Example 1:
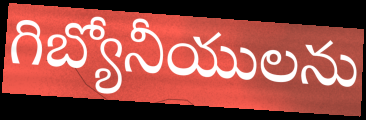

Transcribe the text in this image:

గిబ్యోనీయులను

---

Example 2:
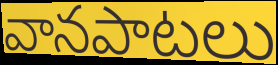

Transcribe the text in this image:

వానపాటలు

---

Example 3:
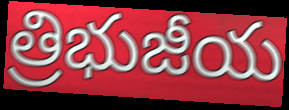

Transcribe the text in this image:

త్రిభుజీయ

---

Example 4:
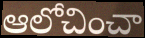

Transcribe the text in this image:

ఆలోచించా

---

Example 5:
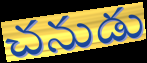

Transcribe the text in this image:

చనుడు